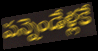
పన్నెండేళ్లకే